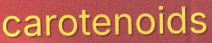
carotenoids